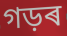
গড়ৰ